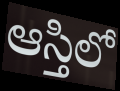
ఆస్తిలో